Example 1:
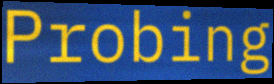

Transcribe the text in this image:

Probing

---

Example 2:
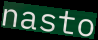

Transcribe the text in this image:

nasto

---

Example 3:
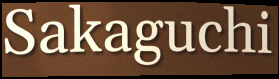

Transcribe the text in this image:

Sakaguchi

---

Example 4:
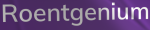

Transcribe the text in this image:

Roentgenium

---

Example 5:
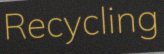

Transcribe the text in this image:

Recycling